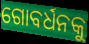
ଗୋବର୍ଧନକୁ